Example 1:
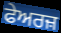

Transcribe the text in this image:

ਫੇਅਰਜ਼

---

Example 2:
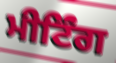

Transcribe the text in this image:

ਮੀਟਿਂੰਗ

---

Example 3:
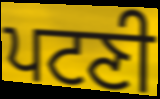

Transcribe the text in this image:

ਪਟਣੀ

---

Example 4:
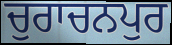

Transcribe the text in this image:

ਚੁਰਾਚਨਪੁਰ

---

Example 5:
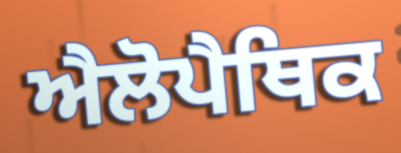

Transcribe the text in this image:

ਐਲੋਪੈਥਿਕ